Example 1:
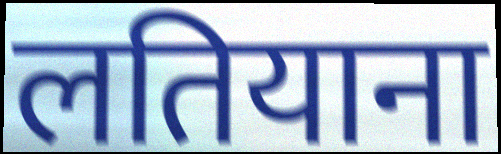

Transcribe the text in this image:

लतियाना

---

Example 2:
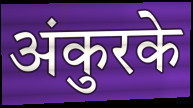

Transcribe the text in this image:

अंकुरके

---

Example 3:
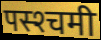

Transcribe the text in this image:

पस्श्चमी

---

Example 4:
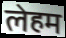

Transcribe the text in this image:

लेहम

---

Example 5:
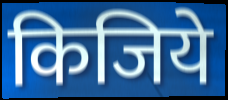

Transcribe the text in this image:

किजिये